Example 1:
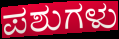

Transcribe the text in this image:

ಪಶುಗಳು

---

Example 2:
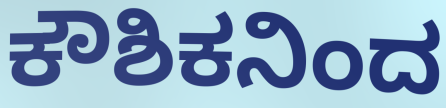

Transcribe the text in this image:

ಕೌಶಿಕನಿಂದ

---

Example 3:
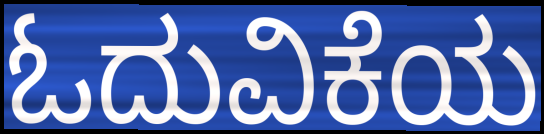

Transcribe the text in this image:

ಓದುವಿಕೆಯ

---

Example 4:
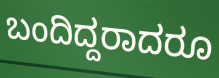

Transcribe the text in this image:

ಬಂದಿದ್ದರಾದರೂ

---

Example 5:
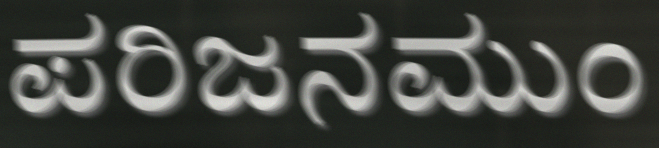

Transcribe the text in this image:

ಪರಿಜನಮುಂ